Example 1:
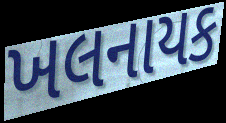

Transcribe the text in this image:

ખલનાયક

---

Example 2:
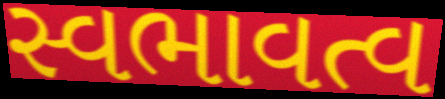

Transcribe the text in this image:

સ્વભાવત્વ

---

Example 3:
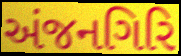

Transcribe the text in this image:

અંજનગિરિ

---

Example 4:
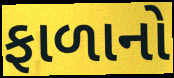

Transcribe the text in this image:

ફાળાનો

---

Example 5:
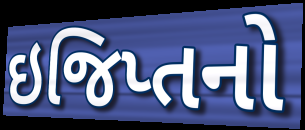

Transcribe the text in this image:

ઇજિપ્તનો